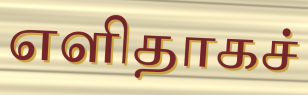
எளிதாகச்